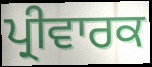
ਪ੍ਰੀਵਾਰਕ